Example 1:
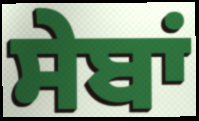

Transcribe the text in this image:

ਸੇਬਾਂ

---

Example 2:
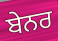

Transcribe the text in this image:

ਬੇਨਰ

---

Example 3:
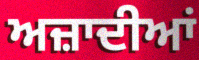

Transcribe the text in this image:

ਅਜ਼ਾਦੀਆਂ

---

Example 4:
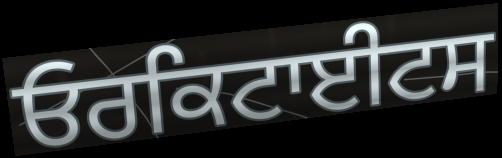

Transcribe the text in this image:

ਓਰਕਿਟਾਈਟਸ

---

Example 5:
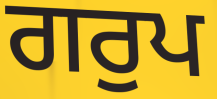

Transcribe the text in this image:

ਗਰੁਪ